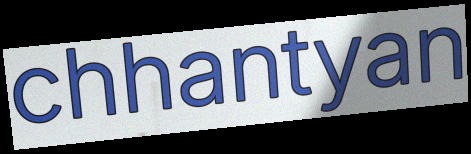
chhantyan